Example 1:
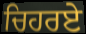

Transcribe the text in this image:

ਚਿਹਰਏ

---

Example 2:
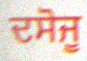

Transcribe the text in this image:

ਦਸੋਜੂ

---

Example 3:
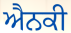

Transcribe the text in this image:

ਐਨਕੀ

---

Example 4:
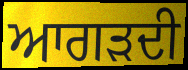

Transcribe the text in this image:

ਆਗੜਦੀ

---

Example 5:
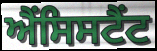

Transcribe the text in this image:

ਐਂਸਿਸਟੈਂਟ